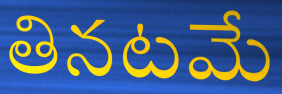
తినటమే